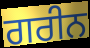
ਗਰੀਨ